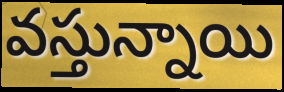
వస్తున్నాయి